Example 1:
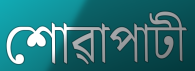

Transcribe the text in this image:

শোৱাপাটী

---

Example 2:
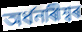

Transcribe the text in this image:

অৰ্ধনাৰীশ্বৰ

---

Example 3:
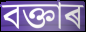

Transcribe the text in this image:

বক্তাৰ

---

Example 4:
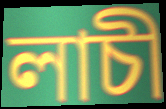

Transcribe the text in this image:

লাচী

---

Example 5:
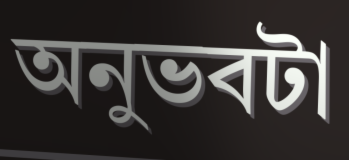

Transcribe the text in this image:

অনুভবটা